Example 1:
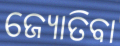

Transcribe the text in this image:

ଜ୍ୟୋତିବା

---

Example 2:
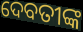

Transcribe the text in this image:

ଦେବତୀଙ୍କ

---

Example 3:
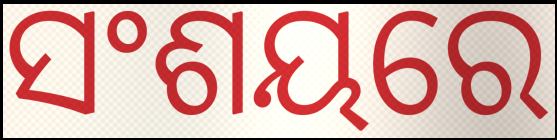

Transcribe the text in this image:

ସଂଶୟରେ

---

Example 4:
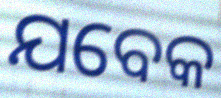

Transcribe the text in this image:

ଯବେକ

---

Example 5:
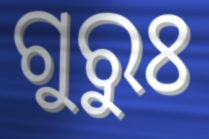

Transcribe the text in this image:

ଗୁରୁଃ